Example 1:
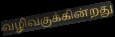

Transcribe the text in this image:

வழிவகுக்கின்றது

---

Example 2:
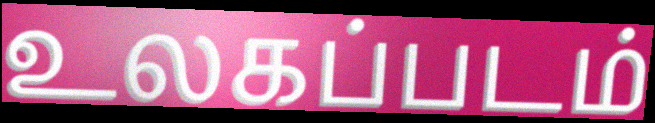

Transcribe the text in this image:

உலகப்படம்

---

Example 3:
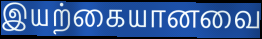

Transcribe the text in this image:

இயற்கையானவை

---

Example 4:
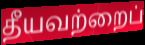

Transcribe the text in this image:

தீயவற்றைப்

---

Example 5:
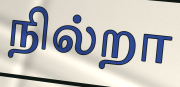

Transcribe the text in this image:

நில்றா